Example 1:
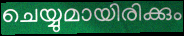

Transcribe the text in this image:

ചെയ്യുമായിരിക്കും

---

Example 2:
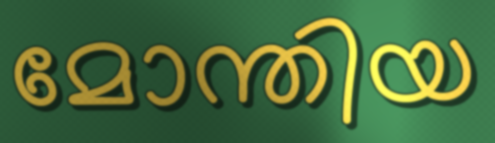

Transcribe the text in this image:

മോന്തിയ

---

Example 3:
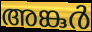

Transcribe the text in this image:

അങ്കുർ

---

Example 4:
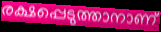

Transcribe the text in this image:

രക്ഷപ്പെടുത്താനാണ്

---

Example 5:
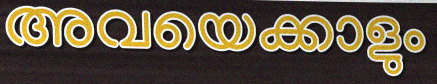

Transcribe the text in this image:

അവയെക്കാളും